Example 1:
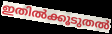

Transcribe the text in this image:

ഇതിൽക്കൂടുതൽ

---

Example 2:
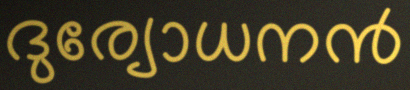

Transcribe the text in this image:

ദുര്യോധനൻ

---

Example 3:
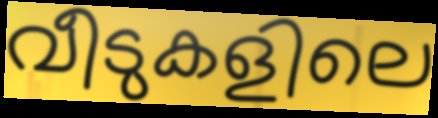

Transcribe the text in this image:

വീടുകളിലെ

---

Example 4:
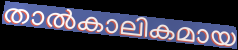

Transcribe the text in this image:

താൽകാലികമായ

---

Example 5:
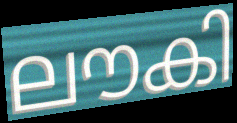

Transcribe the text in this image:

ലൗകി